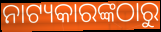
ନାଟ୍ୟକାରଙ୍କଠାରୁ